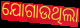
ଯୋଗାଉଥିଲା